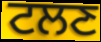
ਟਲਣ